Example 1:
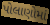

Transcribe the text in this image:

પોલાણોમાં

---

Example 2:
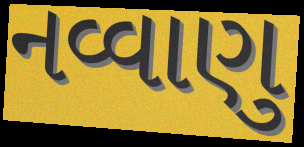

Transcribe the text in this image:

નવ્વાણુ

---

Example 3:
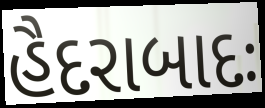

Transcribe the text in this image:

હૈદરાબાદઃ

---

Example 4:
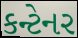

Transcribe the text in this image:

કન્ટેનર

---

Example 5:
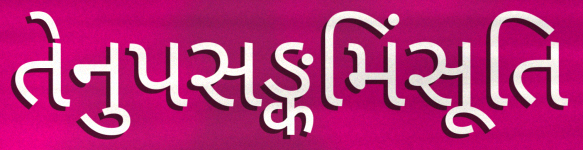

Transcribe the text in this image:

તેનુપસઙ્કમિંસૂતિ